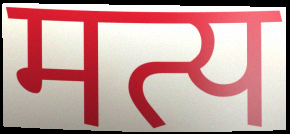
मत्य